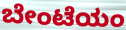
ಬೇಂಟೆಯಂ